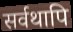
सर्वथापि